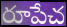
రూపేచ